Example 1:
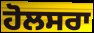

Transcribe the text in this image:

ਹੋਲਸਰਾ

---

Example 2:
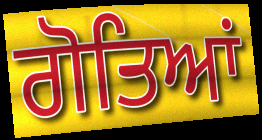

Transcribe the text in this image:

ਗੋਤਿਆਂ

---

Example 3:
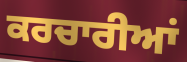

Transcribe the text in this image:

ਕਰਚਾਰੀਆਂ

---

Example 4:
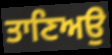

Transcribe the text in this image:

ਤਾਣਿਅਉ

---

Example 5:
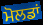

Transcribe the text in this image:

ਮੋਲਡਾਂ